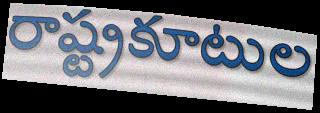
రాష్ట్రకూటుల